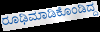
ರೂಢಿಮಾಡಿಕೊಂಡಿದ್ದ